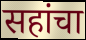
सहांचा